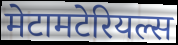
मेटामटेरियल्स